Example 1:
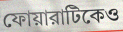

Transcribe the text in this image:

ফোয়ারাটিকেও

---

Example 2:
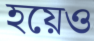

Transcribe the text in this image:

হয়েও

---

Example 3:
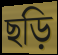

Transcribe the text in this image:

ছড়ি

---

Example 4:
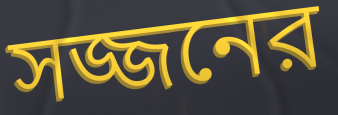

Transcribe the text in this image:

সজ্জনের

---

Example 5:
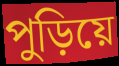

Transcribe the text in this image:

পুড়িয়ে